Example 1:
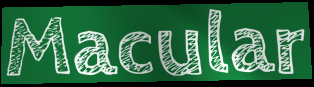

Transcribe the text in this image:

Macular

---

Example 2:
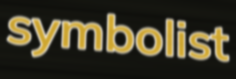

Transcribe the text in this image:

symbolist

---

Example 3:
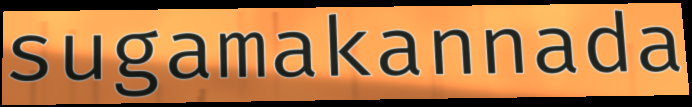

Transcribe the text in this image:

sugamakannada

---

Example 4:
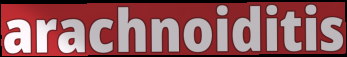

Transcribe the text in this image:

arachnoiditis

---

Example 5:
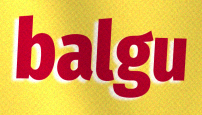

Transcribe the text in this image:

balgu